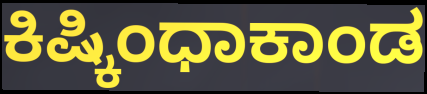
ಕಿಷ್ಕಿಂಧಾಕಾಂಡ